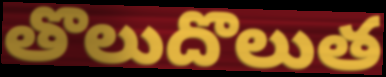
తొలుదొలుత